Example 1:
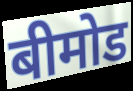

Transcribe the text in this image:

बीमोड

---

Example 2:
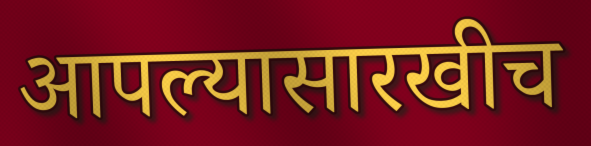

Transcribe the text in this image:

आपल्यासारखीच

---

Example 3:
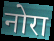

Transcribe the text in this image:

नोरा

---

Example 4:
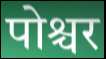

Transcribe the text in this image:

पोश्चर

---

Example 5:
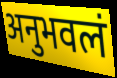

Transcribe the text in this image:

अनुभवलं